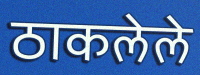
ठाकलेले